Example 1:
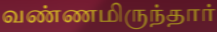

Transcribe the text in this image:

வண்ணமிருந்தார்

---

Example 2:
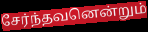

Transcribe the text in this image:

சேர்ந்தவனென்றும்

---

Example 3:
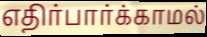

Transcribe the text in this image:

எதிர்பார்க்காமல்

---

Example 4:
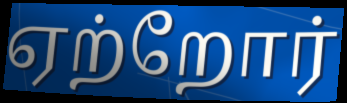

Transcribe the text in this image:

ஏற்றோர்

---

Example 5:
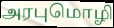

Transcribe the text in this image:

அரபுமொழி